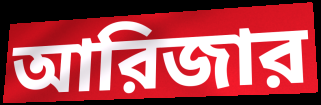
আরিজার